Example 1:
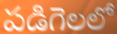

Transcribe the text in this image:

పడిగెలలో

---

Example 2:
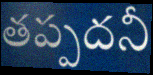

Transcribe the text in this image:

తప్పదనీ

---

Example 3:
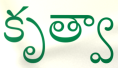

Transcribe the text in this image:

కృత్వా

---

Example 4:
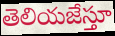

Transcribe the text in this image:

తెలియజేస్తూ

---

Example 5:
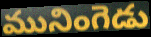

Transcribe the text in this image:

మునింగెడు